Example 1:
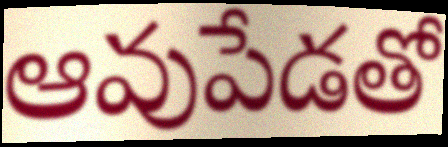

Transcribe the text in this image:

ఆవుపేడతో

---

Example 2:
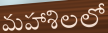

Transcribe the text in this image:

మహాశిలలో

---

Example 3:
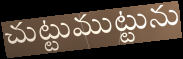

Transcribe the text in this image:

చుట్టుముట్టును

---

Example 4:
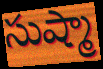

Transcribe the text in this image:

సుష్మా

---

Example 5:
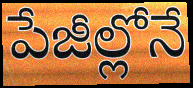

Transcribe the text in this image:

పేజీల్లోనే